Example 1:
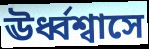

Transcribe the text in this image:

ঊর্ধ্বশ্বাসে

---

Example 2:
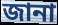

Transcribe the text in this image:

জানা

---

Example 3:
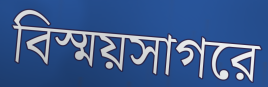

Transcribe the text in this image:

বিস্ময়সাগরে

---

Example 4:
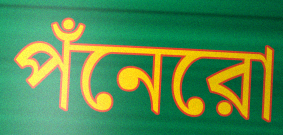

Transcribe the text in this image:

পঁনেরো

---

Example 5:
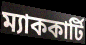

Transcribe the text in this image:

ম্যাককার্টি